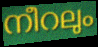
നീറലും